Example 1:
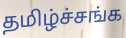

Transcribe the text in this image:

தமிழ்ச்சங்க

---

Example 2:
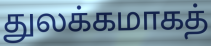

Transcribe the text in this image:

துலக்கமாகத்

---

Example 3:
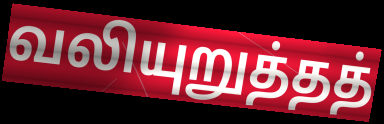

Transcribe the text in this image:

வலியுறுத்தத்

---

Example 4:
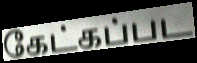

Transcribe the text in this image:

கேட்கப்பட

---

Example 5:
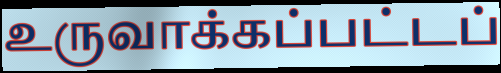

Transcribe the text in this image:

உருவாக்கப்பட்டப்